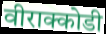
वीराक्कोडी